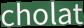
cholat